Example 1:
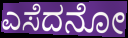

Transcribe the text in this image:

ಎಸೆದನೋ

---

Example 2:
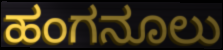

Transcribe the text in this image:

ಹಂಗನೂಲು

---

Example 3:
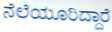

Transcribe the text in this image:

ನೆಲೆಯೂರಿದ್ದಾರೆ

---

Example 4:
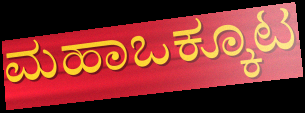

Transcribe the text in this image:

ಮಹಾಒಕ್ಕೂಟ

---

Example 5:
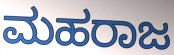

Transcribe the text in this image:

ಮಹರಾಜ